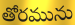
తోరమును